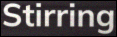
Stirring